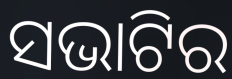
ସଭାଟିର